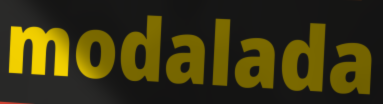
modalada